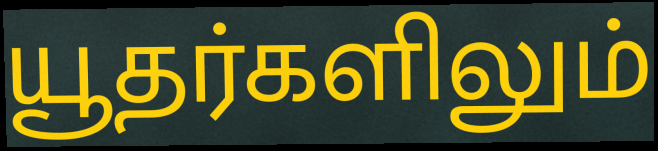
யூதர்களிலும்